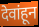
देवांहून